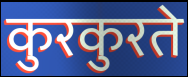
कुरकुरते